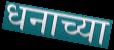
धनाच्या